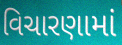
વિચારણામાં